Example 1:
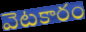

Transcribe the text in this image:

వెటకారం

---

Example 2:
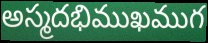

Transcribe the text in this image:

అస్మదభిముఖముగ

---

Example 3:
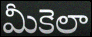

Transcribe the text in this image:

మీకెలా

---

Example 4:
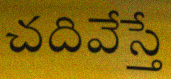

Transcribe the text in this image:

చదివేస్తే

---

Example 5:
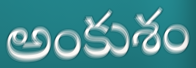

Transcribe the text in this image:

అంకుశం